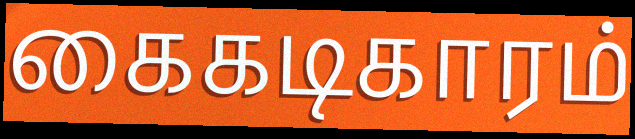
கைகடிகாரம்